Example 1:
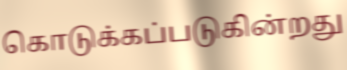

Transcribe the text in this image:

கொடுக்கப்படுகின்றது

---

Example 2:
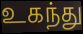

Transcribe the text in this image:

உகந்து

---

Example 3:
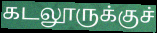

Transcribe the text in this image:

கடலூருக்குச்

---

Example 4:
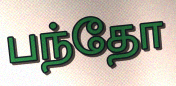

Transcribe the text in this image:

பந்தோ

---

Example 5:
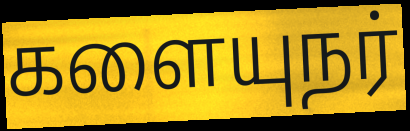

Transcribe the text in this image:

களையுநர்